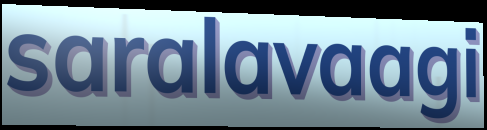
saralavaagi